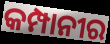
କମ୍ପାନୀର